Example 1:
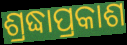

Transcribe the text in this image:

ଶ୍ରଦ୍ଧାପ୍ରକାଶ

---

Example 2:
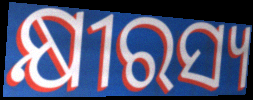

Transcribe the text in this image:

କ୍ଷୀରସ୍ୟ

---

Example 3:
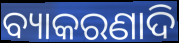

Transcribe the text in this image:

ବ୍ୟାକରଣାଦି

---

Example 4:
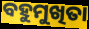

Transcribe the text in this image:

ବହୁମୁଖିତା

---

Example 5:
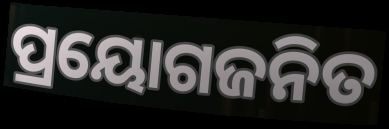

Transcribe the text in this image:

ପ୍ରୟୋଗଜନିତ